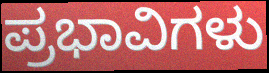
ಪ್ರಭಾವಿಗಳು